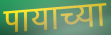
पायाच्या